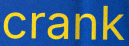
crank